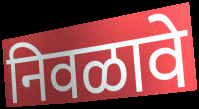
निवळावे